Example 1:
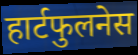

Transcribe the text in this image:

हार्टफुलनेस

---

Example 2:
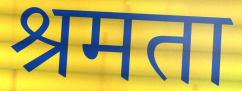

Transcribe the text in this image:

श्रमता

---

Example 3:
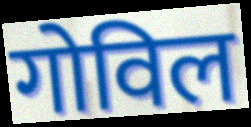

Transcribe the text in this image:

गोविल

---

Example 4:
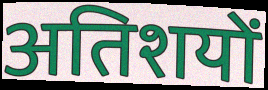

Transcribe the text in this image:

अतिशयों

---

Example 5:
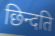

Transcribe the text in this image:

छिन्दति